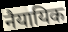
नैयायिक